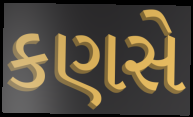
કણસે